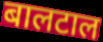
बालटाल